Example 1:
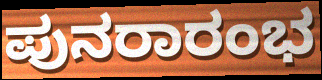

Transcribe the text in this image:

ಪುನರಾರಂಭ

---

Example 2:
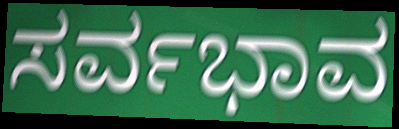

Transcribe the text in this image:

ಸರ್ವಭಾವ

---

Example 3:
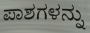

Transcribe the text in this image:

ಪಾಶಗಳನ್ನು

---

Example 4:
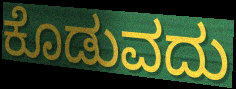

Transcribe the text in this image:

ಕೊಡುವದು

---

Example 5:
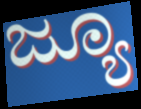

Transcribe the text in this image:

ಜ್ಯೂ